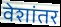
वेशांतर